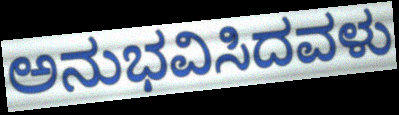
ಅನುಭವಿಸಿದವಳು